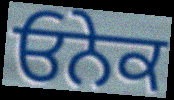
ਓਨੇਕ